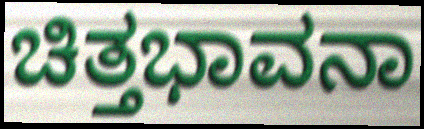
ಚಿತ್ತಭಾವನಾ